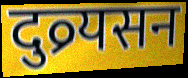
दुव्र्यसन